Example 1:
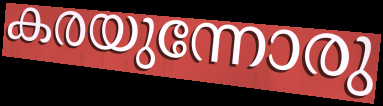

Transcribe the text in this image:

കരയുന്നോരു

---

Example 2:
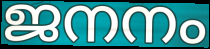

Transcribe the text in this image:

ജനനം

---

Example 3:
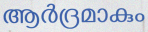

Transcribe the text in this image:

ആർദ്രമാകും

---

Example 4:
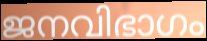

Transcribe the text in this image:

ജനവിഭാഗം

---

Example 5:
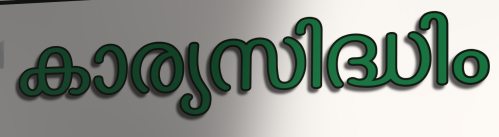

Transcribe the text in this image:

കാര്യസിദ്ധിം